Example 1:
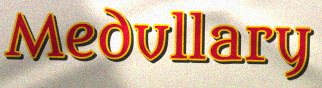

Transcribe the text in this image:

Medullary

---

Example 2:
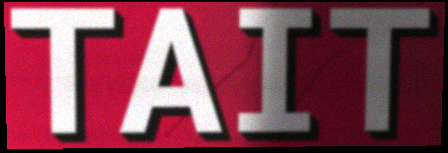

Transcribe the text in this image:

TAIT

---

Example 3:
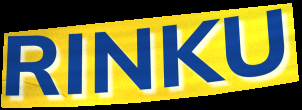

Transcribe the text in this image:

RINKU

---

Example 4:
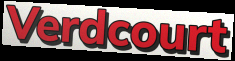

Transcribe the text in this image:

Verdcourt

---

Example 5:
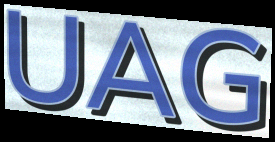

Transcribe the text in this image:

UAG